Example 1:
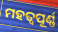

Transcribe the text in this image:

ମହତ୍ଵପୂର୍ଣ୍ଣ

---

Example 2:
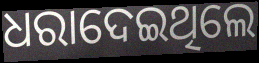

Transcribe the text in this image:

ଧରାଦେଇଥିଲେ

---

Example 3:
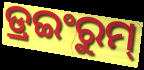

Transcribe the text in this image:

ଡ୍ରଇଂରୁମ୍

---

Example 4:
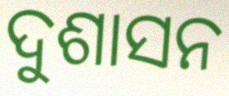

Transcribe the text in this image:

ଦୁଶାସନ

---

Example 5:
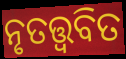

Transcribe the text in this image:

ନୃତତ୍ତ୍ୱବିତ